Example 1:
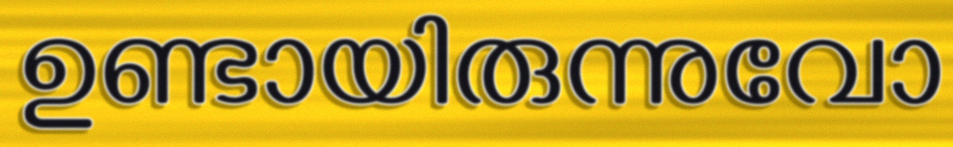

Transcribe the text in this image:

ഉണ്ടായിരുന്നുവോ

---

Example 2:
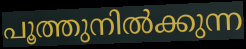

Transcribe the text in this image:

പൂത്തുനിൽക്കുന്ന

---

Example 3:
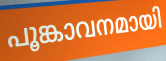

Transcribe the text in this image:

പൂങ്കാവനമായി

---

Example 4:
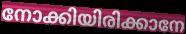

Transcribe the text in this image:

നോക്കിയിരിക്കാനേ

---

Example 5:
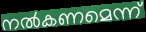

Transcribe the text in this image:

നൽകണമെന്ന്